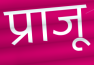
प्राजू